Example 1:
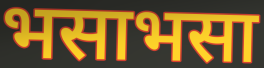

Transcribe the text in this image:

भसाभसा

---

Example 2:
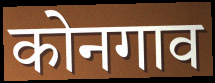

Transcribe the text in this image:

कोनगाव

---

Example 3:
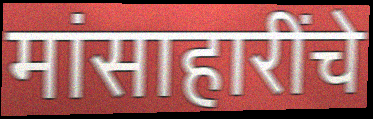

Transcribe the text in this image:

मांसाहारींचे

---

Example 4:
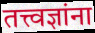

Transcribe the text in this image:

तत्त्वज्ञांना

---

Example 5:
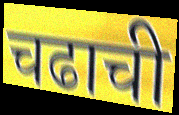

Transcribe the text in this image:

चढाची